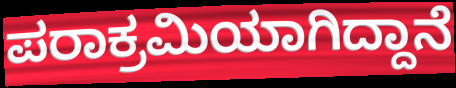
ಪರಾಕ್ರಮಿಯಾಗಿದ್ದಾನೆ